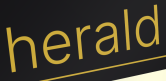
herald